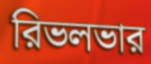
রিভলভার